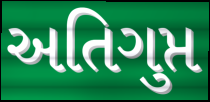
અતિગુપ્ત